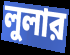
লুলার